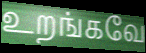
உறங்கவே